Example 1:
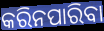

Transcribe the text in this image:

କରିନପାରିବା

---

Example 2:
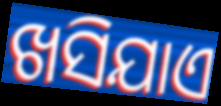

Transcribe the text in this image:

ଖସିଯାଏ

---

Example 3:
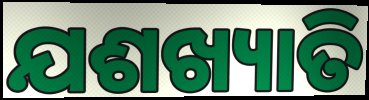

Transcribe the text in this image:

ଯଶଖ୍ୟାତି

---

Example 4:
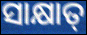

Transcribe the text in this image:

ସାକ୍ଷାତ୍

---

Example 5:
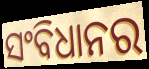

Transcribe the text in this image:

ସଂବିଧାନର